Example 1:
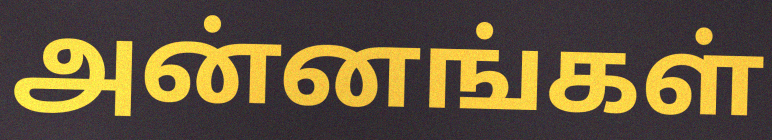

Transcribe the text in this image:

அன்னங்கள்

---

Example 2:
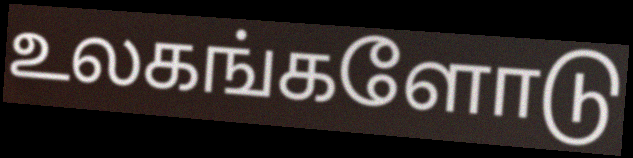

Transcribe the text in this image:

உலகங்களோடு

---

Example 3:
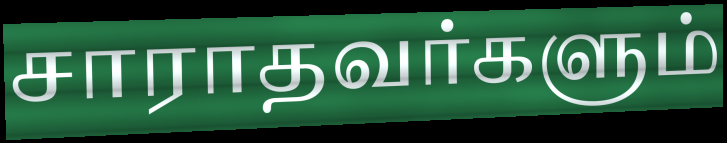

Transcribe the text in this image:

சாராதவர்களும்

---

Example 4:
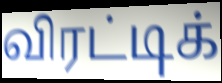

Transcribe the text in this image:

விரட்டிக்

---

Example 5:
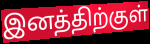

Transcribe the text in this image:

இனத்திற்குள்